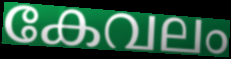
കേവലം